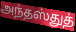
அந்தஸ்துத்